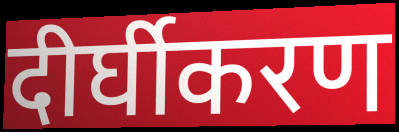
दीर्घीकरण